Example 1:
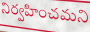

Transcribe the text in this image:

నిర్వహించమని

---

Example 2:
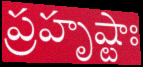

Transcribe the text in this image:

ప్రహృష్టాః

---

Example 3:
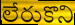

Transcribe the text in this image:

లేరుకొని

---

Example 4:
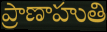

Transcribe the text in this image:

ప్రాణాహుతి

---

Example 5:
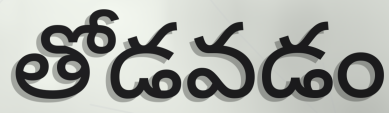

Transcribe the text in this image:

తోడవడం